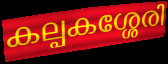
കല്പകശ്ശേരി